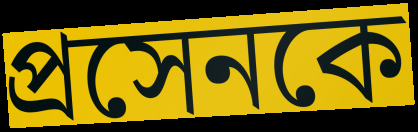
প্রসেনকে